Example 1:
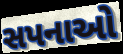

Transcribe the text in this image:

સપનાઓ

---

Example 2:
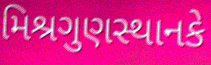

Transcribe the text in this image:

મિશ્રગુણસ્થાનકે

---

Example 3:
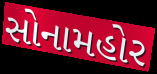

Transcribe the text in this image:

સોનામહોર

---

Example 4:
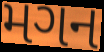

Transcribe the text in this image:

મગન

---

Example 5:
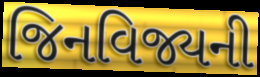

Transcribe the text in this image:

જિનવિજ્યની